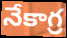
నేకాగ్ర